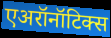
एअरॉनॉटिक्स